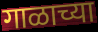
गाळाच्या